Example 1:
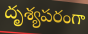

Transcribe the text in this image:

దృశ్యపరంగా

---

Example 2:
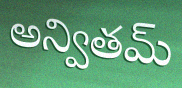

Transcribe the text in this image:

అన్వితమ్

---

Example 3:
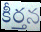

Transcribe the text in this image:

కీర్తన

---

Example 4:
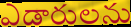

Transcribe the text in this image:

ఎడారులను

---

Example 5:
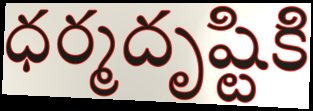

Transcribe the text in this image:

ధర్మదృష్టికి